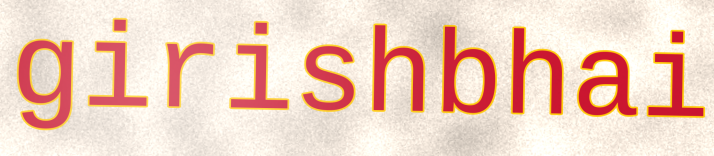
girishbhai